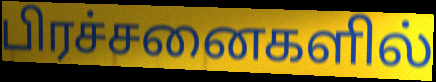
பிரச்சனைகளில்